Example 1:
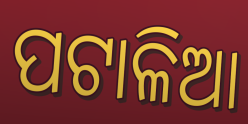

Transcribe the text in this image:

ପଟାଳିଆ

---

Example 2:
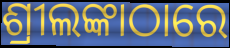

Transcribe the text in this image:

ଶ୍ରୀଲଙ୍କାଠାରେ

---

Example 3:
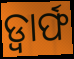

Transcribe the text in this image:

ଡ୍ୱାର୍ଫ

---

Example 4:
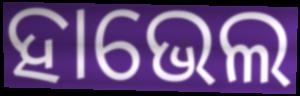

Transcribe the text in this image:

ହାଭେଲ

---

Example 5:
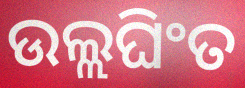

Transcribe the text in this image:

ଉଲ୍ଲଘିଂତ